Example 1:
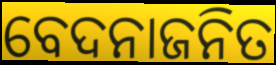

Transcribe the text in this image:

ବେଦନାଜନିତ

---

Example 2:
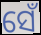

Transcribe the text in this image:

ସେଁ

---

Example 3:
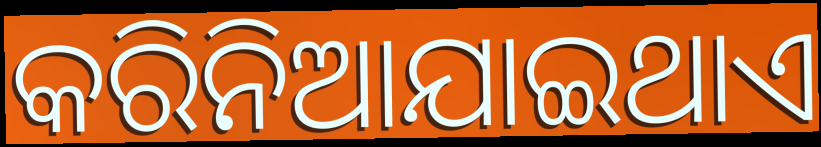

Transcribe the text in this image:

କରିନିଆଯାଇଥାଏ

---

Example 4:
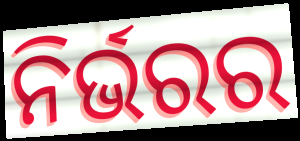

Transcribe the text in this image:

ନିର୍ଭରର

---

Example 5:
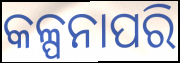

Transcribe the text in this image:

କଳ୍ପନାପରି